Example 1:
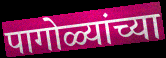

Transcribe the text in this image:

पागोळ्यांच्या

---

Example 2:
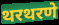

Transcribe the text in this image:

थरथरणे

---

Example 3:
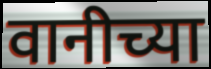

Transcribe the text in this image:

वानीच्या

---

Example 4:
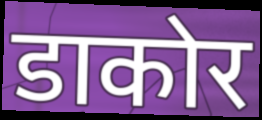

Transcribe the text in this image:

डाकोर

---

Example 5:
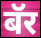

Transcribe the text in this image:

बॅर